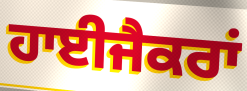
ਹਾਈਜੈਕਰਾਂ